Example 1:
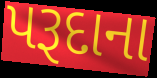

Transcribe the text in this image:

પરૂદાના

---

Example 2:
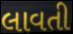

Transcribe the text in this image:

લાવતી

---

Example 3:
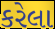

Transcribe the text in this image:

કરેલા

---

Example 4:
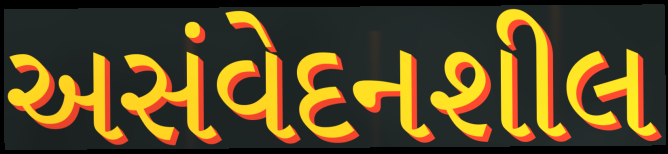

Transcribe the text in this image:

અસંવેદનશીલ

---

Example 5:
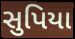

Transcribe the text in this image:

સુપિયા